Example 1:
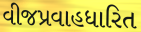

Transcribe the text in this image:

વીજપ્રવાહધારિત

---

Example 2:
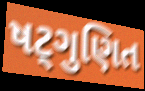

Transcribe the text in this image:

ષટ્ગુણિત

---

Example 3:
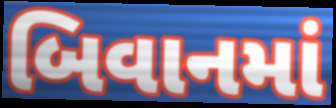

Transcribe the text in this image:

બિવાનમાં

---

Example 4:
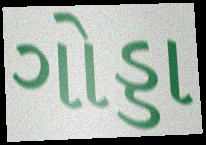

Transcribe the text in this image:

ગોડ્ડા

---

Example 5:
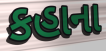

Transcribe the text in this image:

કહાના